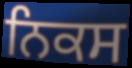
ਨਿਕਸ